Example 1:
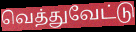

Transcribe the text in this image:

வெத்துவேட்டு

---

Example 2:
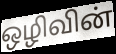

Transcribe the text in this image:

ஒழிவின்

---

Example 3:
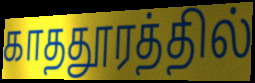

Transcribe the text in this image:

காததூரத்தில்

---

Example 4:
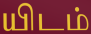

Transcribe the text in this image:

யிடம்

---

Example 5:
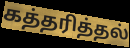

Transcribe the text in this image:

கத்தரித்தல்